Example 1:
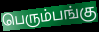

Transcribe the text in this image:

பெரும்பங்கு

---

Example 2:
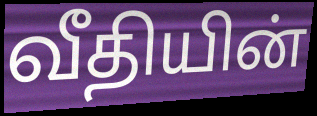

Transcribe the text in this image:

வீதியின்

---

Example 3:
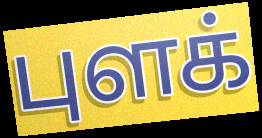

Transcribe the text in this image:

புளக்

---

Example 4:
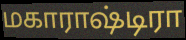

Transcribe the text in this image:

மகாராஷ்டிரா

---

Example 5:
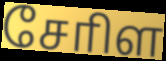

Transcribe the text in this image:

சேரிள